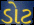
ડોટ